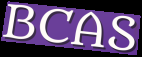
BCAS